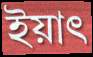
ইয়াৎ